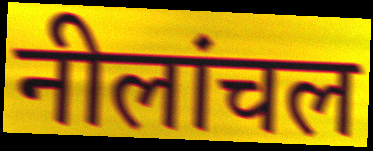
नीलांचल